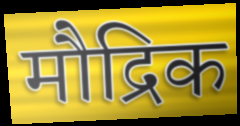
मौद्रिक